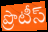
ప్రొటీస్